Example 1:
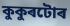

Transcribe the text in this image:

কুকুৰটোৰ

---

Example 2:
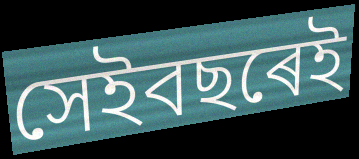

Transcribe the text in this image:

সেইবছৰেই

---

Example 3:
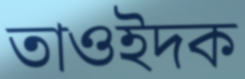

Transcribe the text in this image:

তাওইদক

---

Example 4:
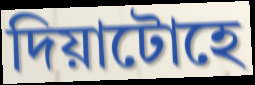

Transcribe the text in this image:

দিয়াটোহে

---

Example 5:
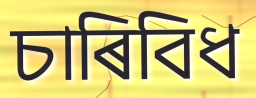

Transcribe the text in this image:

চাৰিবিধ